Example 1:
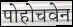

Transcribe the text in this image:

पोहोचवेन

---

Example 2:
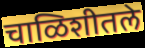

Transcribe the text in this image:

चाळिशीतले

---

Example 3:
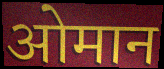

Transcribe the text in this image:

ओमान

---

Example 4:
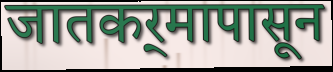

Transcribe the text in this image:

जातकर्मापासून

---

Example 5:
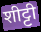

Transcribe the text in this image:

शीट्टी